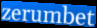
zerumbet